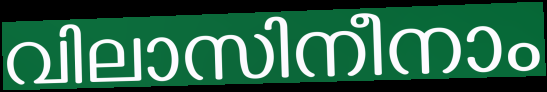
വിലാസിനീനാം